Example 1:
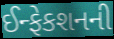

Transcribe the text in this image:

ઈન્ફેકશનની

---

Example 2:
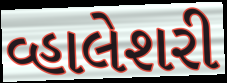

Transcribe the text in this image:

વ્હાલેશરી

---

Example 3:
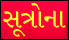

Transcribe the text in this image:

સૂત્રોના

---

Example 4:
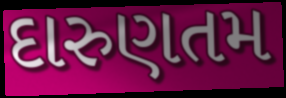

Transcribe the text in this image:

દારુણતમ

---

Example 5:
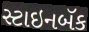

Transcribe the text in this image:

સ્ટાઇનબૅક